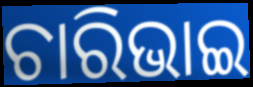
ଚାରିଭାଇ